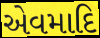
એવમાદિ